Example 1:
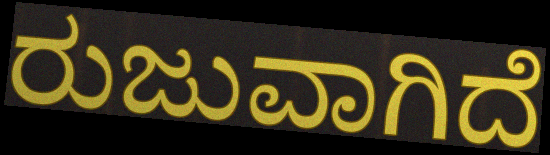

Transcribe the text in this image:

ರುಜುವಾಗಿದೆ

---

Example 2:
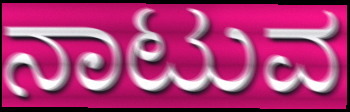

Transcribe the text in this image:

ನಾಟುವ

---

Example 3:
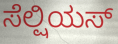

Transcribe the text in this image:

ಸೆಲ್ಷಿಯಸ್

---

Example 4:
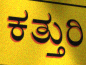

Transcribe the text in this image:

ಕತ್ತುರಿ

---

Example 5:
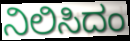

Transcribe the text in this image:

ನಿಲಿಸಿದಂ